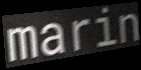
marin